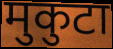
मुकुटा